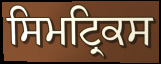
ਸਿਮਟ੍ਰਿਕਸ